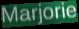
Marjorie